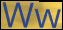
Ww